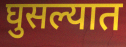
घुसल्यात